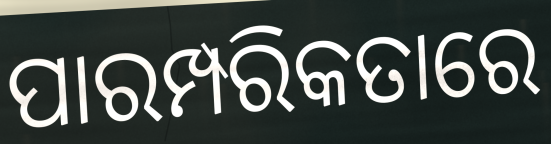
ପାରମ୍ପରିକତାରେ